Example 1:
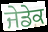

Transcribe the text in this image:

ਜੇਡੇਕ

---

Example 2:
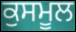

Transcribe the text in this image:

ਕੁਸਮੂਲ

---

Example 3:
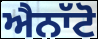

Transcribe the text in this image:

ਐਨਾੱਟੋ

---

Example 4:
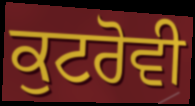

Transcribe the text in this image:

ਕੁਟਰੋਵੀ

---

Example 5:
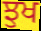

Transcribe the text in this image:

ਝੁਖ